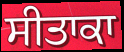
ਸੀਤਾਕਾ